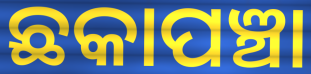
ଛକାପଞ୍ଚା